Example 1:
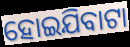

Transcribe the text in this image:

ହୋଇଯିବାଟା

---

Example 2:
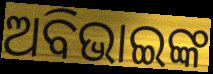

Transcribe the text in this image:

ଅବିଭାଇଙ୍କ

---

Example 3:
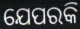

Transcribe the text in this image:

ଯେପରକି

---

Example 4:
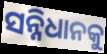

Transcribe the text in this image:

ସନ୍ନିଧାନକୁ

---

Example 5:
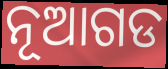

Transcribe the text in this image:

ନୂଆଗଡ